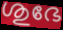
ശുഭേ